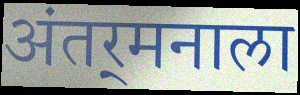
अंतर्मनाला